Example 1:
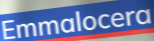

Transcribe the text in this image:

Emmalocera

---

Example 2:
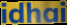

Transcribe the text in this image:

idhai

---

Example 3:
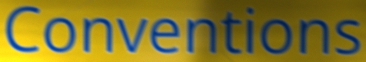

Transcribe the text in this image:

Conventions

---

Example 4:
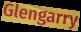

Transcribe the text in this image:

Glengarry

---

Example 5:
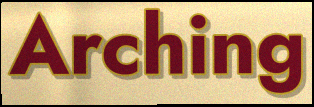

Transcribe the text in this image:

Arching